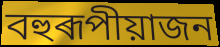
বহুৰূপীয়াজন